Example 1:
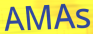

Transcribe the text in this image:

AMAs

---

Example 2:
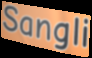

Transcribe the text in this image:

Sangli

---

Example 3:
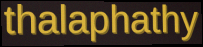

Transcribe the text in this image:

thalaphathy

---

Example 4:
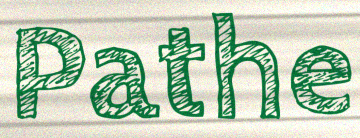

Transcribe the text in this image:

Pathe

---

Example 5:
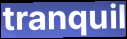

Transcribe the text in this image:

tranquil